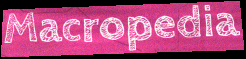
Macropedia